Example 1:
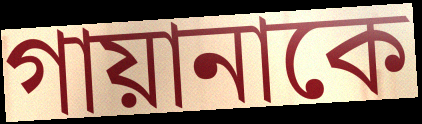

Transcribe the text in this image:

গায়ানাকে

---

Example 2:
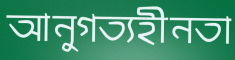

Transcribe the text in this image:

আনুগত্যহীনতা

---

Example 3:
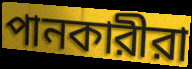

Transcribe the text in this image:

পানকারীরা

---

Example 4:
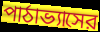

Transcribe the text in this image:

পাঠাভ্যাসের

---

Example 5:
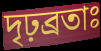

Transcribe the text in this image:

দৃঢ়ব্রতাঃ